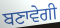
ਬਣਾਵੇਗੀ